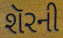
શૅરની